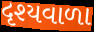
દૃશ્યવાળા